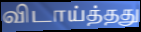
விடாய்த்தது